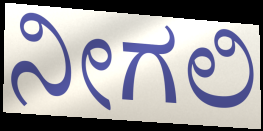
ನೀಗಲಿ